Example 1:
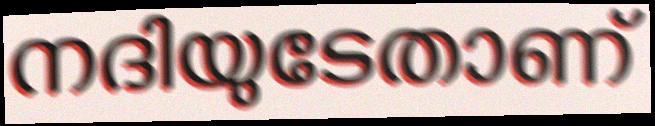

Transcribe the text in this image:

നദിയുടേതാണ്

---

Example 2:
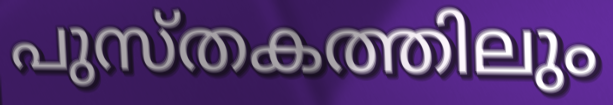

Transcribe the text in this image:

പുസ്തകത്തിലും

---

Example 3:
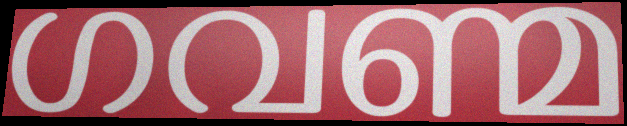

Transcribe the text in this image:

ഗവണ്മ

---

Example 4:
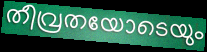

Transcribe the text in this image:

തീവ്രതയോടെയും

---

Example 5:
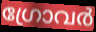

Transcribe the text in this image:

ഗ്രോവർ